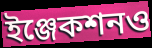
ইঞ্জেকশনও